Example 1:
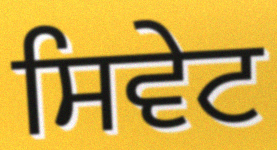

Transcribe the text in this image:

ਸਿਵੇਟ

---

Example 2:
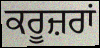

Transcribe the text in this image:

ਕਰੂਜ਼ਰਾਂ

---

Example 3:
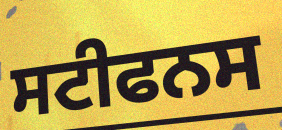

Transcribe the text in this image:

ਸਟੀਫਨਸ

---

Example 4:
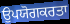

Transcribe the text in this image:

ਉਪਯੋਗਕਰਤਾ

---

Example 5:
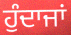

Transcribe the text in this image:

ਹੁੰਦਾਜਾਂ